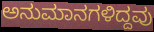
ಅನುಮಾನಗಳಿದ್ದವು